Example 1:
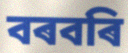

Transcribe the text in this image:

বৰবৰি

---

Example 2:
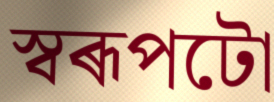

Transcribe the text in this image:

স্বৰূপটো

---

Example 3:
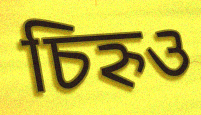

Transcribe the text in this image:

চিহ্নও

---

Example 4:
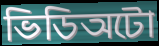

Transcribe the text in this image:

ভিডিঅটো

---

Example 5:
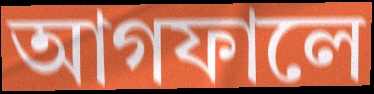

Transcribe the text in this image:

আগফালে